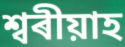
শ্বৰীয়াহ